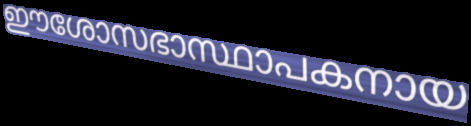
ഈശോസഭാസ്ഥാപകനായ